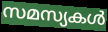
സമസ്യകൾ